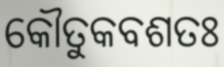
କୌତୁକବଶତଃ